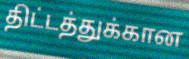
திட்டத்துக்கான